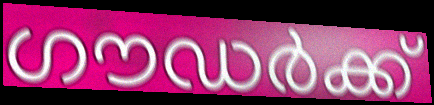
ഗൗഡർക്ക്